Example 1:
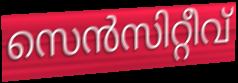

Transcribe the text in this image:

സെൻസിറ്റീവ്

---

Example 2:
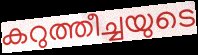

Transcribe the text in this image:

കറുത്തീച്ചയുടെ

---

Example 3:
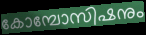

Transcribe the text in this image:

കോമ്പോസിഷനും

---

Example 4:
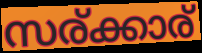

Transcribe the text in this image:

സര്ക്കാര്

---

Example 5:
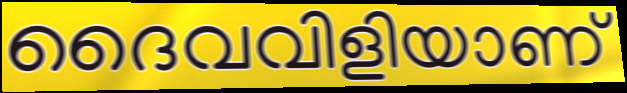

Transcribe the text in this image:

ദൈവവിളിയാണ്